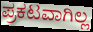
ಪ್ರಕಟವಾಗಿಲ್ಲ